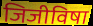
जिजीविषा